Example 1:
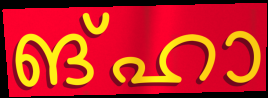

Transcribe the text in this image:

ങ്ഹാ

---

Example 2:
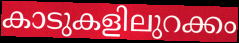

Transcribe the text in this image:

കാടുകളിലുറക്കം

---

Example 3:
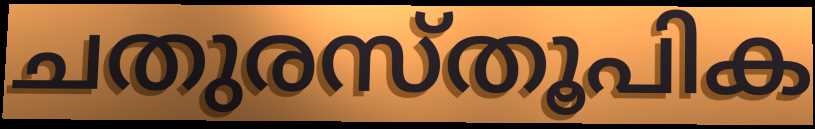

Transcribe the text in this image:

ചതുരസ്തൂപിക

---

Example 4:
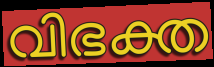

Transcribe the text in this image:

വിഭക്ത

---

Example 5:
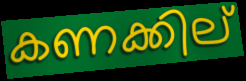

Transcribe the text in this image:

കണക്കില്